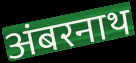
अंबरनाथ